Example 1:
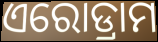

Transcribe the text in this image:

ଏରୋଡ୍ରାମ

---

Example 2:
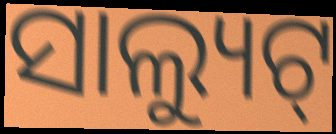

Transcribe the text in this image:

ସାଲ୍ୟୁଟ୍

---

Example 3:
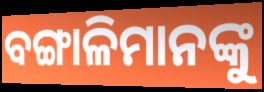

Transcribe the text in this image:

ବଙ୍ଗାଳିମାନଙ୍କୁ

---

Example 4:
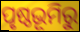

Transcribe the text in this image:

ପୃଷ୍ଠଭୂମିରୁ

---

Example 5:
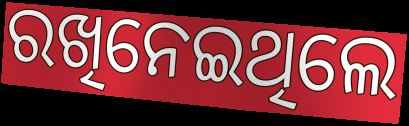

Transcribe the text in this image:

ରଖିନେଇଥିଲେ